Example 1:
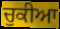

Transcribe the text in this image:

ਚੁਕੀਆ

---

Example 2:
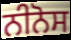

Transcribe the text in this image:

ਨੀਨੋਸ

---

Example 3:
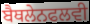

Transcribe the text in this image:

ਬੈਥਲੇਨਫਲਵੀ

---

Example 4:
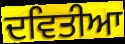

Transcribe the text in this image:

ਦਵਿਤੀਆ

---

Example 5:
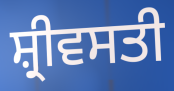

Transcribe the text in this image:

ਸ਼੍ਰੀਵਸਤੀ